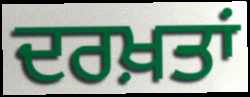
ਦਰਖ਼ਤਾਂ